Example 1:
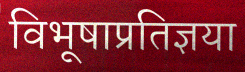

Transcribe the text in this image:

विभूषाप्रतिज्ञया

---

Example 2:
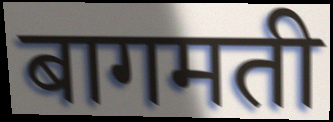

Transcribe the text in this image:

बागमती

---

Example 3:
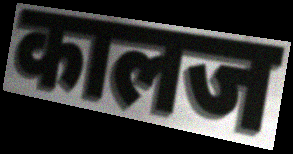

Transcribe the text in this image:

कालज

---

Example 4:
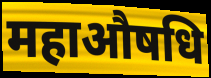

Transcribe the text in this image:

महाऔषधि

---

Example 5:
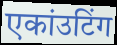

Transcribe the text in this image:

एकांउटिंग